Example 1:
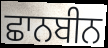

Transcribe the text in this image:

ਛਾਨਬੀਨ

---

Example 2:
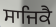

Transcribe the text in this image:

ਸਾਜਿਕੈ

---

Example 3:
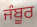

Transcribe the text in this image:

ਜੰਬੂਰ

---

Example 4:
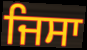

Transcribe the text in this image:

ਜਿਸਾ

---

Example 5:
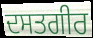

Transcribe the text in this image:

ਦਸਤਗੀਰ